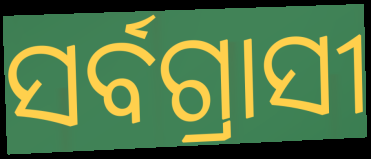
ସର୍ବଗ୍ରାସୀ